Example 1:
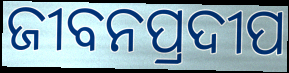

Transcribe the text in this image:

ଜୀବନପ୍ରଦୀପ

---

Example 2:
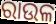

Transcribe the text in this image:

ରାଉଳ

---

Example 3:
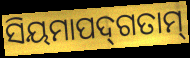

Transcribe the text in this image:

ସିୟମାପଦ୍‌ଗତାମ୍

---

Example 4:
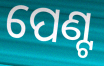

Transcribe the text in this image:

ପେଣ୍ଟ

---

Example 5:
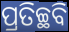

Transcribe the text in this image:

ପ୍ରତିଚ୍ଛବି